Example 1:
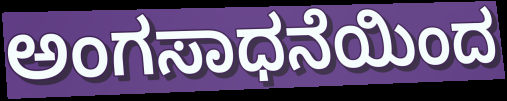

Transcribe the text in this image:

ಅಂಗಸಾಧನೆಯಿಂದ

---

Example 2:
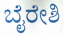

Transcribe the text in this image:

ಬೈರೇಶಿ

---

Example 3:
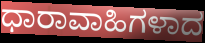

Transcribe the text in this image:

ಧಾರಾವಾಹಿಗಳಾದ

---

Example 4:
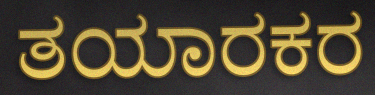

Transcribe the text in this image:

ತಯಾರಕರ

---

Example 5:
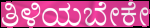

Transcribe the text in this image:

ತಿಳಿಯಬೇಕೇ